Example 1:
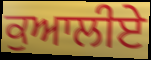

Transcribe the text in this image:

ਕੁਆਲੀਏ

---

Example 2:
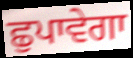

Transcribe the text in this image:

ਛੁਪਾਵੇਗਾ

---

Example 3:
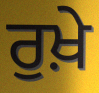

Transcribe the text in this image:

ਰੁਖ਼ੇ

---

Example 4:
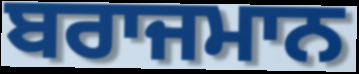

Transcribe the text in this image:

ਬਰਾਜਮਾਨ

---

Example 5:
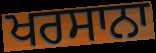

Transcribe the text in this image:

ਖਰਸਾਨਾ